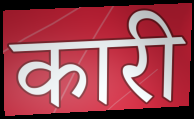
कारी